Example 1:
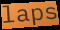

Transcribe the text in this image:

laps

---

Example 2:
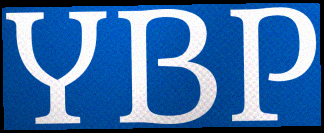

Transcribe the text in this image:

YBP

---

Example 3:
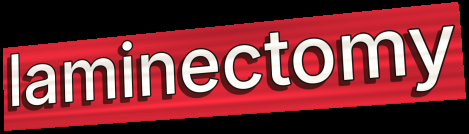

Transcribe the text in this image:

laminectomy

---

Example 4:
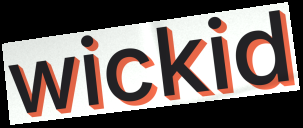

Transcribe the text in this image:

wickid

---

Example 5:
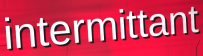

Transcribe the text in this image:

intermittant